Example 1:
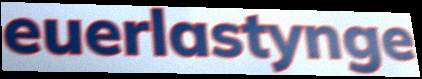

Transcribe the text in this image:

euerlastynge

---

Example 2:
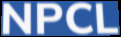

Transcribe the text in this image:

NPCL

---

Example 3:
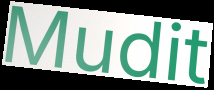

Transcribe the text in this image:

Mudit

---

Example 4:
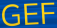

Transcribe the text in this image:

GEF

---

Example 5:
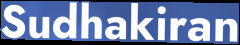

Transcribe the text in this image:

Sudhakiran